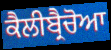
ਕੈਲੀਬ੍ਰੈਚੋਆ